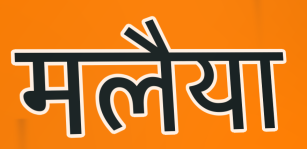
मलैया